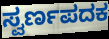
ಸ್ವರ್ಣಪದಕ